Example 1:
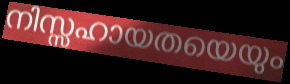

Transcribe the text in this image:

നിസ്സഹായതയെയും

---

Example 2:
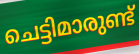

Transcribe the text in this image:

ചെട്ടിമാരുണ്ട്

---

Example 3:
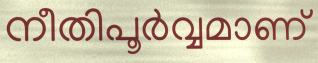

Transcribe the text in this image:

നീതിപൂർവ്വമാണ്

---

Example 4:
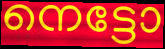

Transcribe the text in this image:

നെട്ടോ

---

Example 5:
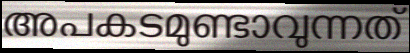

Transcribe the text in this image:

അപകടമുണ്ടാവുന്നത്